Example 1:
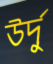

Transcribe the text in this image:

উৰ্দু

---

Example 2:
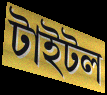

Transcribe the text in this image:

টাইটল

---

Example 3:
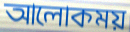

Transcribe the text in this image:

আলোকময়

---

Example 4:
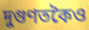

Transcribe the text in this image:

দুগুণতকৈও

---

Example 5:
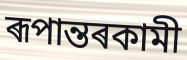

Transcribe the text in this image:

ৰূপান্তৰকামী